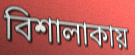
বিশালাকায়